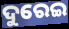
ଦୁରେଇ